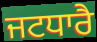
ਜਟਧਾਰੈ